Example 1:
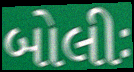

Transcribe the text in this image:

બોલીઃ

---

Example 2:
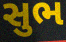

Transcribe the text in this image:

સુભ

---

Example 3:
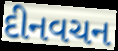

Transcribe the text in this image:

દીનવચન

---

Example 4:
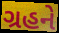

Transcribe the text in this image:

ગ્રહને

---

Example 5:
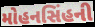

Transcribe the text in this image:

મોહનસિંહની